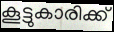
കൂട്ടുകാരിക്ക്